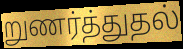
றுணர்த்துதல்